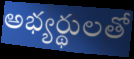
అభ్యర్థులతో